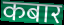
कबार